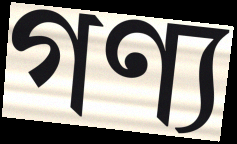
গণ্য